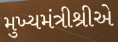
મુખ્યમંત્રીશ્રીએ